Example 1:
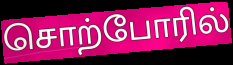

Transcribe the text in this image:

சொற்போரில்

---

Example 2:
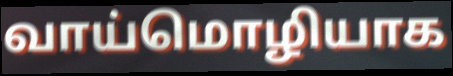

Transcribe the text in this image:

வாய்மொழியாக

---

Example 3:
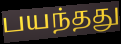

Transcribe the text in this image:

பயந்தது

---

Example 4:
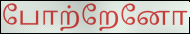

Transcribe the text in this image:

போற்றேனோ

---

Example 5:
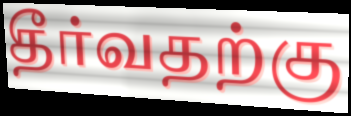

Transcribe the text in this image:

தீர்வதற்கு